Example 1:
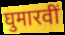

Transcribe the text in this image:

घुमारवीं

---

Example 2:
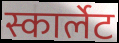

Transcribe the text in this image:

स्कार्लेट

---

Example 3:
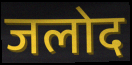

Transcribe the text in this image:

जलोद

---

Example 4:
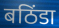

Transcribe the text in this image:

बठिंडा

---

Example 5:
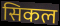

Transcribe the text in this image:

सिकल